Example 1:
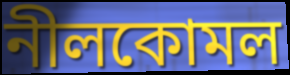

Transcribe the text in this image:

নীলকোমল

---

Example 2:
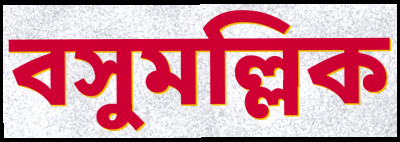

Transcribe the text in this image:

বসুমল্লিক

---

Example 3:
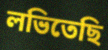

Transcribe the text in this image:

লভিতেছি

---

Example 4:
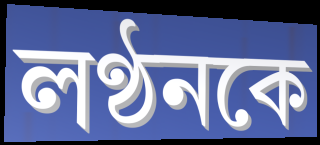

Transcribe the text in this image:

লণ্ঠনকে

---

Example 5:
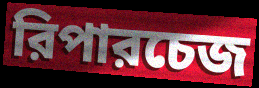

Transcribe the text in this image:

রিপারচেজ